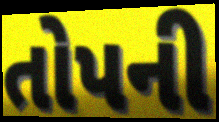
તોપની